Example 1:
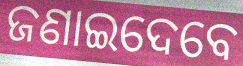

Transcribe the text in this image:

ଜଣାଇଦେବେ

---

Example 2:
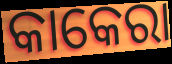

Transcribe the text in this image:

କାକେରା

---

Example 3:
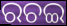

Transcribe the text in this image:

ରଚଇ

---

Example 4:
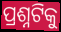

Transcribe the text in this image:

ପ୍ରଶ୍ନଟିକୁ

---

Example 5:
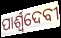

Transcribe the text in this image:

ପାର୍ଶ୍ୱଦେବୀ